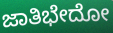
ಜಾತಿಭೇದೋ